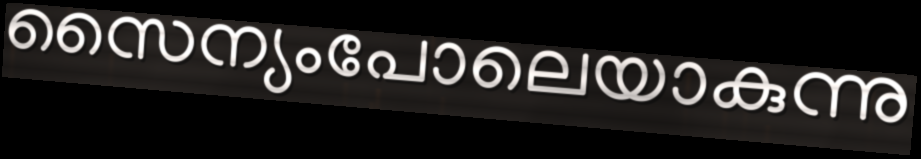
സൈന്യംപോലെയാകുന്നു